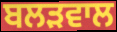
ਬਲੜਵਾਲ